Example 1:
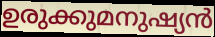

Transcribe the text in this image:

ഉരുക്കുമനുഷ്യൻ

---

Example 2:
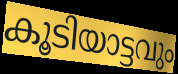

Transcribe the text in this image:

കൂടിയാട്ടവും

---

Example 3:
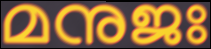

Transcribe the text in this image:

മനുജഃ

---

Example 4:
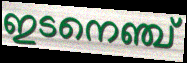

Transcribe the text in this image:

ഇടനെഞ്ച്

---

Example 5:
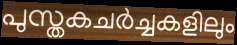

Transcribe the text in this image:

പുസ്തകചർച്ചകളിലും